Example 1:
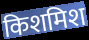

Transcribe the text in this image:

किशमिश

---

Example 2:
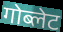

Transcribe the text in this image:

गोब्लेट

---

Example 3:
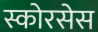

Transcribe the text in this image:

स्कोरसेस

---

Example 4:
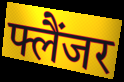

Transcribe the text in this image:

फ्लैंजर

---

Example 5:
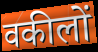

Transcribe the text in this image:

वकीलों